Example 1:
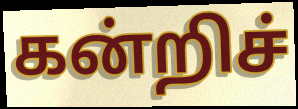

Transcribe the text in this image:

கன்றிச்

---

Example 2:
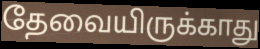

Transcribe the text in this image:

தேவையிருக்காது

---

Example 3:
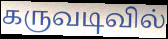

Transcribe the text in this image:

கருவடிவில்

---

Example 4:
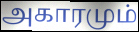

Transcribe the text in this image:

அகாரமும்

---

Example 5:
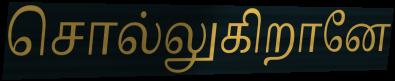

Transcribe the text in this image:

சொல்லுகிறானே